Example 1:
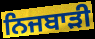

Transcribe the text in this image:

ਨਿਜਬਾੜੀ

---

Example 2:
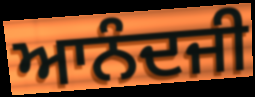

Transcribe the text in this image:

ਆਨੰਦਜੀ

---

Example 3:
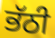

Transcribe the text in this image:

ਭੱਠੀ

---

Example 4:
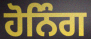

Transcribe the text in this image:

ਹੋਨਿੰਗ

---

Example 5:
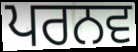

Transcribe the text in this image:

ਪਰਨਵ